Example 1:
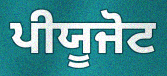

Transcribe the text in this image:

ਪੀਯੂਜੋਟ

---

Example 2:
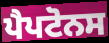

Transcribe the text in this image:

ਪੈਪਟੋਨਸ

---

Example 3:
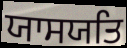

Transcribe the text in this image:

ਯਾਸਯਤਿ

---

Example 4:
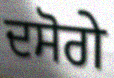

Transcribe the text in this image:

ਦਸੋਗੇ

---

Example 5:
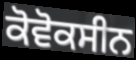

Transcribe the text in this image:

ਕੋਵੋਕਸੀਨ